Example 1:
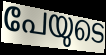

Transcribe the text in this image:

പേയുടെ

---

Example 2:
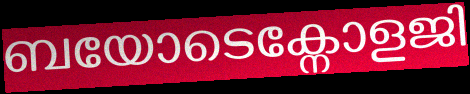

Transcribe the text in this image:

ബയോടെക്നോളജി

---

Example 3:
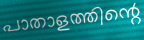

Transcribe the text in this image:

പാതാളത്തിന്റെ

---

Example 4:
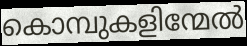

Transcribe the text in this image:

കൊമ്പുകളിന്മേൽ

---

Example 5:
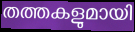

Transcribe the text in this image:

തത്തകളുമായി